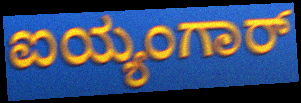
ಐಯ್ಯಂಗಾರ್